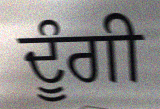
ਦੂੰਗੀ